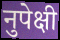
नुपेक्षी